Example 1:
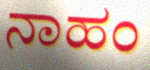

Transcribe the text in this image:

ನಾಹಂ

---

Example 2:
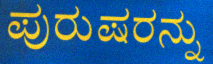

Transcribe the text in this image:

ಪುರುಷರನ್ನು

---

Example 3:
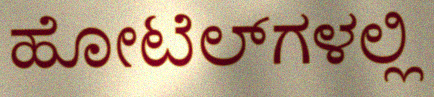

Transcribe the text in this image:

ಹೋಟೆಲ್‌ಗಳಲ್ಲಿ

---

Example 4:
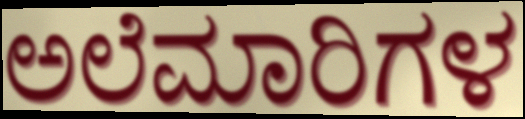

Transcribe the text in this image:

ಅಲೆಮಾರಿಗಳ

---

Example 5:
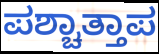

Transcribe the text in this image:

ಪಶ್ಚಾತ್ತಾಪ